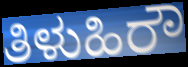
ತಿಳುಹಿರೌ